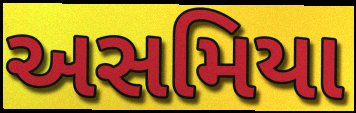
અસમિયા